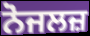
ਨੋਜਲਜ਼